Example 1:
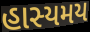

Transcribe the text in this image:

હાસ્યમય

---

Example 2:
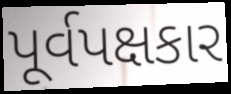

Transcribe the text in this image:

પૂર્વપક્ષકાર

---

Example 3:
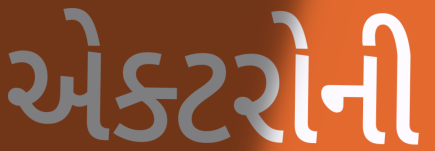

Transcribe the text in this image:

એક્ટરોની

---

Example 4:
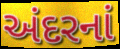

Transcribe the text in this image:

અંદરનાં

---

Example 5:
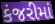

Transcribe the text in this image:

કંજરીમાં